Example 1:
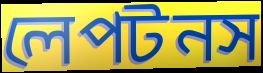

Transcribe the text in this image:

লেপটনস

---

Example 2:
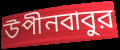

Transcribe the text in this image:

উপীনবাবুর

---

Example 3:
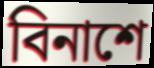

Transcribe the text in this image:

বিনাশে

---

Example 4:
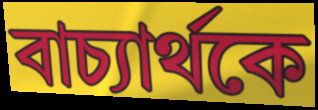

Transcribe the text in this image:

বাচ্যার্থকে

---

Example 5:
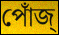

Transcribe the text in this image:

পোঁজ্